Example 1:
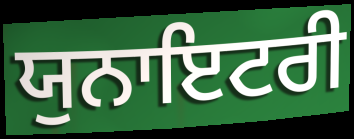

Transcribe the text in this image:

ਯੁਨਾਇਟਰੀ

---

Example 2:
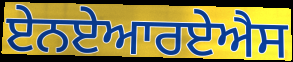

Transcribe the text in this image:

ਏਨਏਆਰਏਐਸ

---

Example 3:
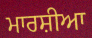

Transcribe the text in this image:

ਮਾਰਸ਼ੀਆ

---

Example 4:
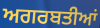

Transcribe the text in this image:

ਅਗਰਬਤੀਆਂ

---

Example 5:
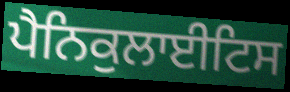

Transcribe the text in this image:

ਪੈਨਿਕੁਲਾਈਟਿਸ